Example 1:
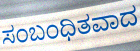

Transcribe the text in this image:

ಸಂಬಂಧಿತವಾದ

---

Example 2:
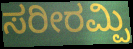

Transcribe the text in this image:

ಸರೀರಮ್ಪಿ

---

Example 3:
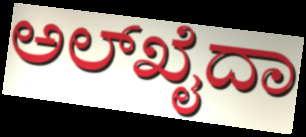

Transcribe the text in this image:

ಅಲ್‌ಖೈದಾ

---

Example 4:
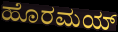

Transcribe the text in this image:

ಹೊರಮಯ್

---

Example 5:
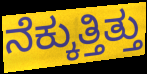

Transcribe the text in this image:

ನೆಕ್ಕುತ್ತಿತ್ತು